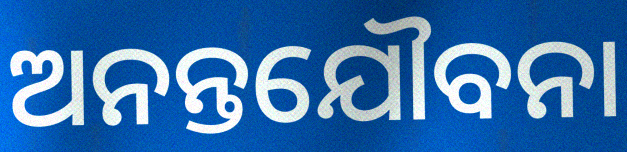
ଅନନ୍ତଯୌବନା